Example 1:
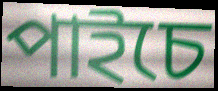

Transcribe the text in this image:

পাইচে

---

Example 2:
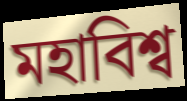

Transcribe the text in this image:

মহাবিশ্ব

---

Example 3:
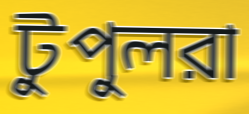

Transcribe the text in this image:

টুপুলরা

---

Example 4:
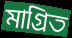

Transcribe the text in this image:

মাগ্রিত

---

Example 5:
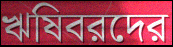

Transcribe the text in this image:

ঋষিবরদের